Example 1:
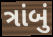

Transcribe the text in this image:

ત્રાંબું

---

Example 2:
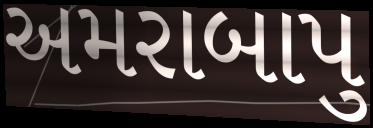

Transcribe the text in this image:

અમરાબાપુ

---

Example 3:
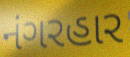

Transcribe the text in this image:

નંગરહાર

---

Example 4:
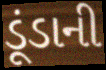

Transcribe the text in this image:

ડૂંડાની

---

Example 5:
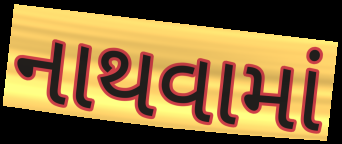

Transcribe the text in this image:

નાથવામાં